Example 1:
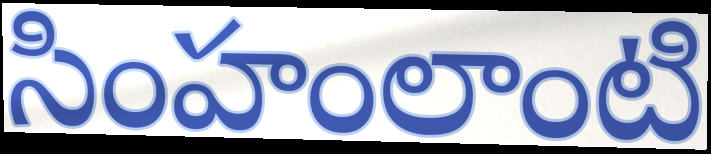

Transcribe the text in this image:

సింహంలాంటి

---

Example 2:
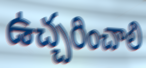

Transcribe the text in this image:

ఉచ్చరించాలి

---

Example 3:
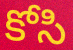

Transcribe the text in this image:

కోసి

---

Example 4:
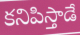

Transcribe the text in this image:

కనిపిస్తాడే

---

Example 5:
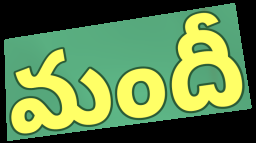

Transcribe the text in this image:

మందీ